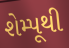
શેમ્પૂથી